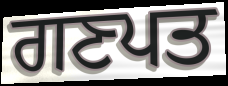
ਗਣਪਤ